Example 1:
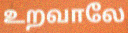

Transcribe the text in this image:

உறவாலே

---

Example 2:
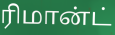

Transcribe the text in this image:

ரிமான்ட்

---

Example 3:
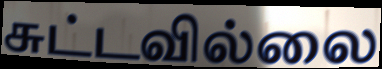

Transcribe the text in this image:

சுட்டவில்லை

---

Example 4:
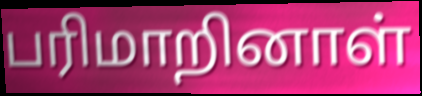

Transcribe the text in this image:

பரிமாறினாள்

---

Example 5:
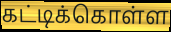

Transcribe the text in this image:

கட்டிக்கொள்ள